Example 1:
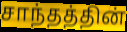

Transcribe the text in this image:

சாந்தத்தின்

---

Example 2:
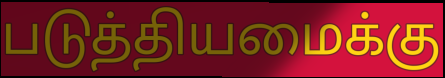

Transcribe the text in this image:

படுத்தியமைக்கு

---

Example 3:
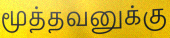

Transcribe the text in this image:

மூத்தவனுக்கு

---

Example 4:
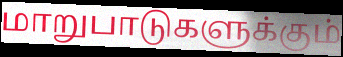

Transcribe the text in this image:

மாறுபாடுகளுக்கும்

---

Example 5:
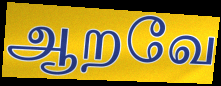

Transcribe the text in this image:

ஆறவே